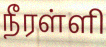
நீரள்ளி